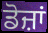
ਡੋਜ਼ਾਂ